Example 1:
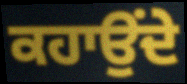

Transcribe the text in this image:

ਕਹਾਉਂਦੇ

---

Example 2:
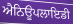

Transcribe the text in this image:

ਐਨਿਊਪਲਾਇਡੀ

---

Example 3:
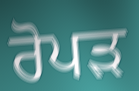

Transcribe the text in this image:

ਰੋਪੜ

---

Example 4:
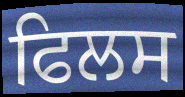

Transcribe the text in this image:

ਫਿਲਸ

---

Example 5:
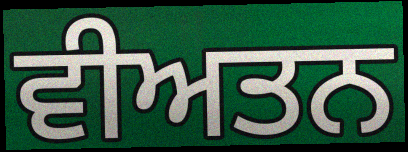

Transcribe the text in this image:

ਵੀਅਤਨ